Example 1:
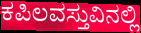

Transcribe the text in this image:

ಕಪಿಲವಸ್ತುವಿನಲ್ಲಿ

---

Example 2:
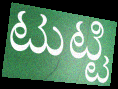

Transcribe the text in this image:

ಟುಟ್ಟಿ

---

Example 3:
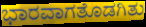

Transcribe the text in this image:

ಭಾರವಾಗತೊಡಗಿತು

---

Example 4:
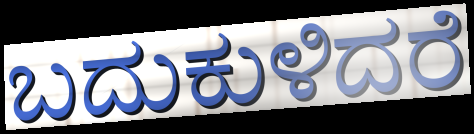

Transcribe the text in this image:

ಬದುಕುಳಿದರೆ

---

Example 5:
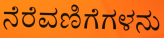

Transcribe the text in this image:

ನೆರೆವಣಿಗೆಗಳನು